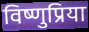
विष्णुप्रिया